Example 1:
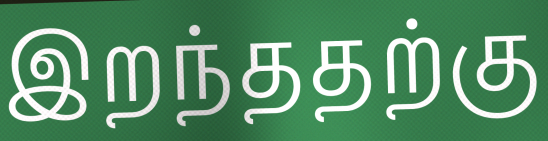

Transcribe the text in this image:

இறந்ததற்கு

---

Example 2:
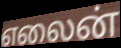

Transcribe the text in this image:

எலைன்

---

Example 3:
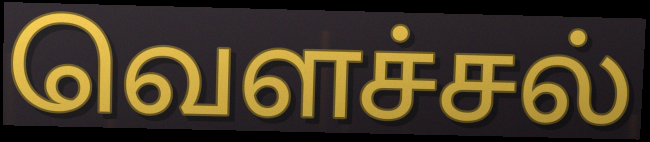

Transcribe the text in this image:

வெளச்சல்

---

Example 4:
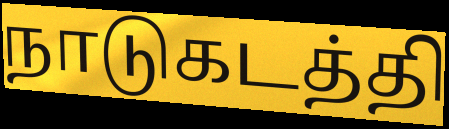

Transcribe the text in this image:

நாடுகடத்தி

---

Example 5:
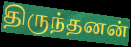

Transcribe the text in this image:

திருந்தனன்